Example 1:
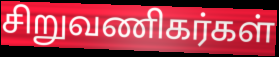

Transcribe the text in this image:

சிறுவணிகர்கள்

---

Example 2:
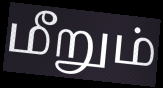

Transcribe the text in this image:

மீறும்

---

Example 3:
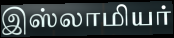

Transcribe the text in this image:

இஸ்லாமியர்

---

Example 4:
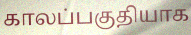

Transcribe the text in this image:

காலப்பகுதியாக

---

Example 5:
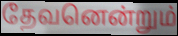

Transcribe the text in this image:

தேவனென்றும்